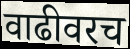
वाढीवरच